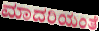
ಮಾದರಿಯಂತೆ